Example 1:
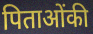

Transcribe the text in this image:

पिताओंकी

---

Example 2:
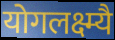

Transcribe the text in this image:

योगलक्ष्म्यै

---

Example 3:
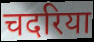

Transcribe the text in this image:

चदरिया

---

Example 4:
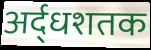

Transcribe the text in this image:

अर्द्धशतक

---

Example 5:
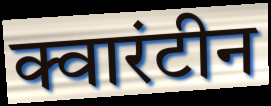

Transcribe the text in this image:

क्वारंटीन